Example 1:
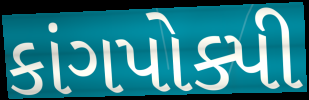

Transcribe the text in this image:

કાંગપોક્પી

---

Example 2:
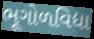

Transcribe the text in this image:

ભૂગોળવિદ્યા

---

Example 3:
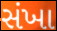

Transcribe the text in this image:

સંખા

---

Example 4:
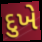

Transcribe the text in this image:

દુખે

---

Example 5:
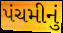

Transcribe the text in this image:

પંચમીનું